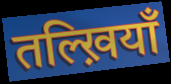
तल्ख़ियाँ